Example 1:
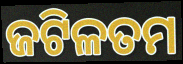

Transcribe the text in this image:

ଜଟିଳତମ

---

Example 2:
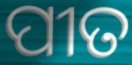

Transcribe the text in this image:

ପୀତ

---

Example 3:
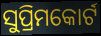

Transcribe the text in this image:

ସୁପ୍ରିମକୋର୍ଟ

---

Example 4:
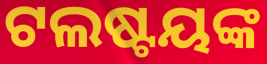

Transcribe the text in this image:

ଟଲଷ୍ଟୟଙ୍କ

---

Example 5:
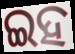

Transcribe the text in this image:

ଇହ